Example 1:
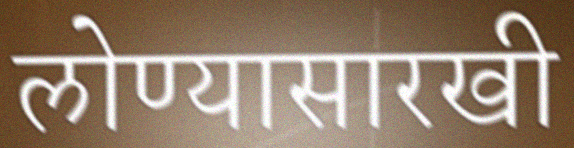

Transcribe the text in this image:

लोण्यासारखी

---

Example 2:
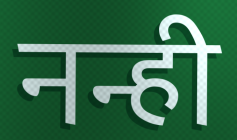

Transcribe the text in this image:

नन्ही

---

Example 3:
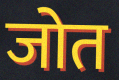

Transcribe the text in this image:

जोत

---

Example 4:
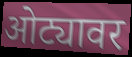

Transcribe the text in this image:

ओट्यावर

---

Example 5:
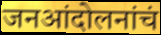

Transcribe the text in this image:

जनआंदोलनांचं